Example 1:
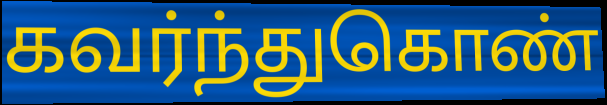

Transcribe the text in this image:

கவர்ந்துகொண்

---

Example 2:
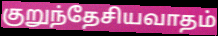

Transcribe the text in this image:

குறுந்தேசியவாதம்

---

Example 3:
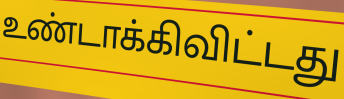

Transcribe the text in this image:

உண்டாக்கிவிட்டது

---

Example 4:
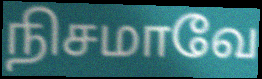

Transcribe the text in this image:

நிசமாவே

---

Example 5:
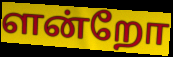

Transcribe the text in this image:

ளன்றோ